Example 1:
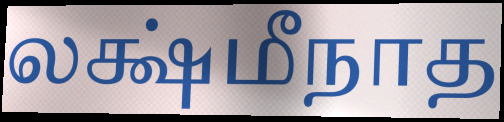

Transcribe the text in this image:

லக்ஷ்மீநாத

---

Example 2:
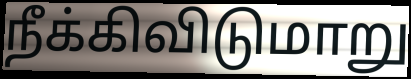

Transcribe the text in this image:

நீக்கிவிடுமாறு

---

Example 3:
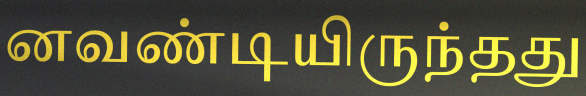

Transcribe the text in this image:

னவண்டியிருந்தது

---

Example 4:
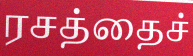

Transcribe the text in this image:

ரசத்தைச்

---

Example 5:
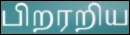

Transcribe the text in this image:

பிறரறிய